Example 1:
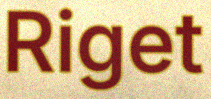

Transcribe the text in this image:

Riget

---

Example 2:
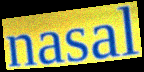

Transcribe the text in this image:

nasal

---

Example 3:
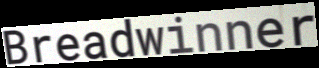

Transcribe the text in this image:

Breadwinner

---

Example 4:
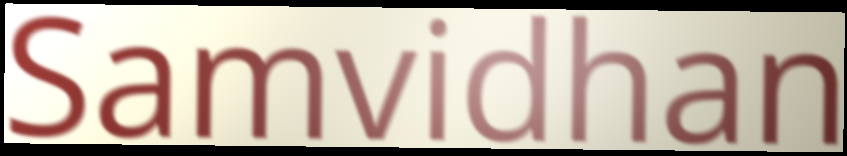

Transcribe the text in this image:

Samvidhan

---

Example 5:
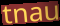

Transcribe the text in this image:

tnau